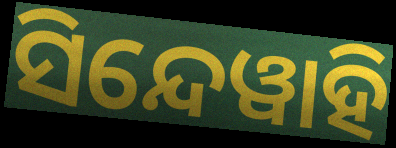
ସିନ୍ଦେୱାହି